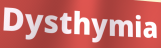
Dysthymia